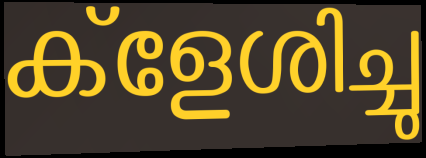
ക്ളേശിച്ചു